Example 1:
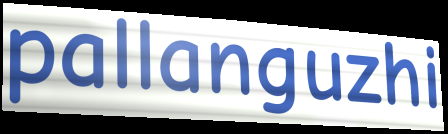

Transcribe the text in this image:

pallanguzhi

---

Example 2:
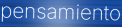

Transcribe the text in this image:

pensamiento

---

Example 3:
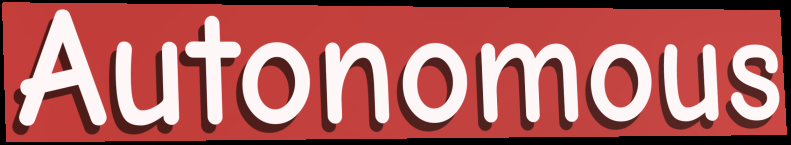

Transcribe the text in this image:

Autonomous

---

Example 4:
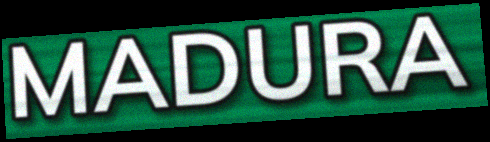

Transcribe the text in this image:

MADURA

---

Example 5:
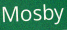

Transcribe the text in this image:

Mosby